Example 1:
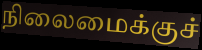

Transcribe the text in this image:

நிலைமைக்குச்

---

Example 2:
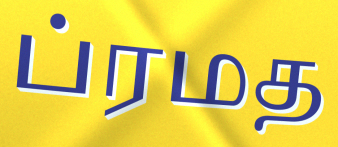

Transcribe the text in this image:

ப்ரமத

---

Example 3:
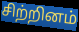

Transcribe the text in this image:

சிற்றினம்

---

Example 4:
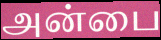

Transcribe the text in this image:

அன்பை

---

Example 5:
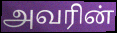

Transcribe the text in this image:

அவரின்